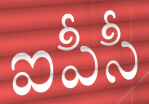
ఐపీసీ